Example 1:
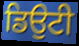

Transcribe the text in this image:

ਡਿਉਟੀ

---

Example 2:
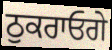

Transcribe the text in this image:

ਠੁਕਰਾਓਗੇ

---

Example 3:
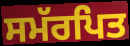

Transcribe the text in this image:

ਸਮੱਰਪਿਤ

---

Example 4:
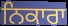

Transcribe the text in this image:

ਨਿਕਾਰਾ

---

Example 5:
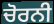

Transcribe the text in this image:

ਚੋਰਨੀ